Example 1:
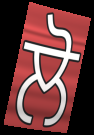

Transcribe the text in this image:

ਲੋ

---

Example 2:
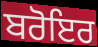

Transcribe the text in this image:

ਬਰੋਇਰ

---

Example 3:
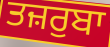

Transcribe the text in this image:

ਤਜ਼ਰੁਬਾ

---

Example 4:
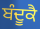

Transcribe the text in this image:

ਬੰਦੂਕੈ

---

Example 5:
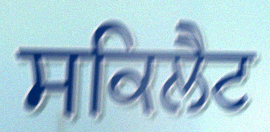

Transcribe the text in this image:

ਸਕਿਲੈਟ